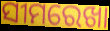
ସୀମରେଖା